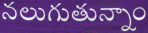
నలుగుతున్నాం